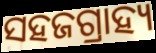
ସହଜଗ୍ରାହ୍ୟ